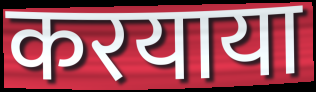
करयाया